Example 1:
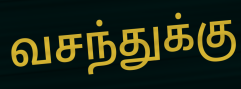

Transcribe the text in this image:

வசந்துக்கு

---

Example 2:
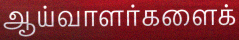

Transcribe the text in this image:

ஆய்வாளர்களைக்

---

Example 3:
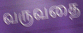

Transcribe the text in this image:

வருவதை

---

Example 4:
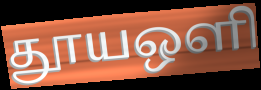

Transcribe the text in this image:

தூயஒளி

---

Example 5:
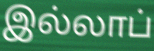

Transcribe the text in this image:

இல்லாப்